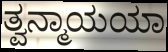
ತ್ವನ್ಮಾಯಯಾ